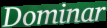
Dominar